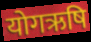
योगऋषि